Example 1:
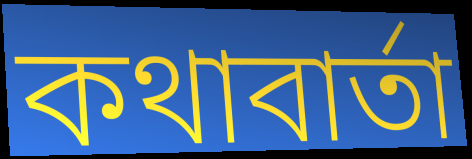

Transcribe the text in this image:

কথাবার্তা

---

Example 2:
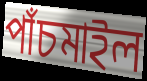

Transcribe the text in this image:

পাঁচমাইল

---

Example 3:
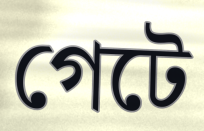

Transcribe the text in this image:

গেটে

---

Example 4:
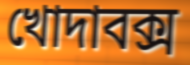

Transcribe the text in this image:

খোদাবক্স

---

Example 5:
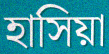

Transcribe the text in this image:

হাসিয়া